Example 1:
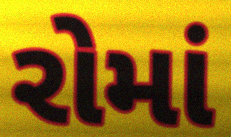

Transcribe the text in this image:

રોમાં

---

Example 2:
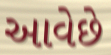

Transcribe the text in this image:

આવેછે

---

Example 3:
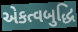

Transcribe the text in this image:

એકત્વબુદ્ધિ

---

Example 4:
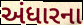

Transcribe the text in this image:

અંધારના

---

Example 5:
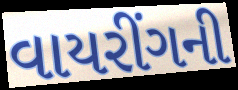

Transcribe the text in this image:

વાયરીંગની